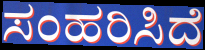
ಸಂಹರಿಸಿದೆ